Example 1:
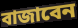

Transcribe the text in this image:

বাজাবেন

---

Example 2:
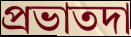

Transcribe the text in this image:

প্রভাতদা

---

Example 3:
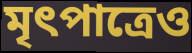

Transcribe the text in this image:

মৃৎপাত্রেও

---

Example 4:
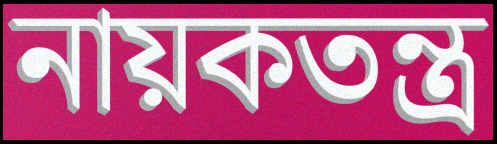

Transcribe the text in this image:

নায়কতন্ত্র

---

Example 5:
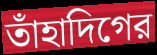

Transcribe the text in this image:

তাঁহাদিগের